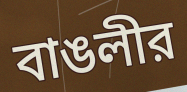
বাঙলীর